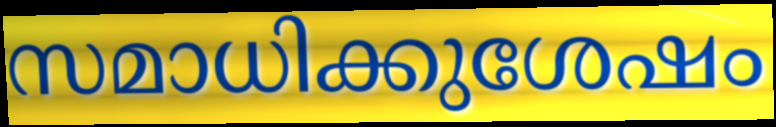
സമാധിക്കുശേഷം